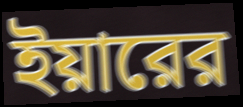
ইয়ারের